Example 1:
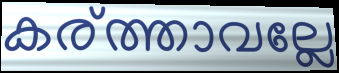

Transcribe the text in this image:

കര്ത്താവല്ലേ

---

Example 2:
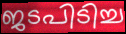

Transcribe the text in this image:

ജടപിടിച്ച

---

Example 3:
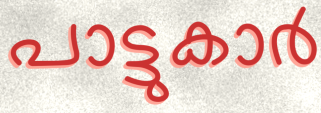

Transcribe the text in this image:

പാട്ടുകാർ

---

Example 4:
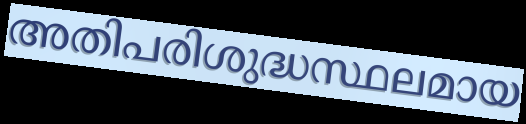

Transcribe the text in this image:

അതിപരിശുദ്ധസ്ഥലമായ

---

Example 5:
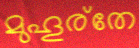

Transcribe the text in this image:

മുഹൂര്തേ